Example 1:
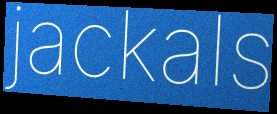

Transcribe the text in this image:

jackals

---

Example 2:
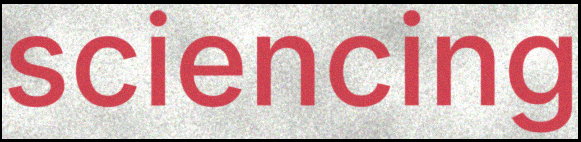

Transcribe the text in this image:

sciencing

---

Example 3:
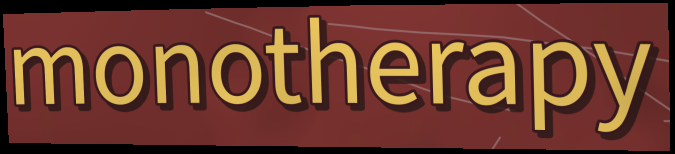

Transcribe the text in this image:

monotherapy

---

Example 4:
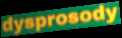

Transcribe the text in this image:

dysprosody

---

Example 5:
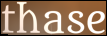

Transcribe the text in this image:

thase